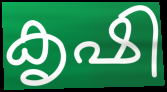
കൃഷി